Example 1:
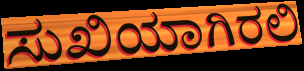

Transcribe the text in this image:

ಸುಖಿಯಾಗಿರಲಿ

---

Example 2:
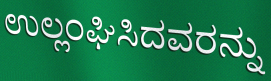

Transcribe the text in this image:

ಉಲ್ಲಂಘಿಸಿದವರನ್ನು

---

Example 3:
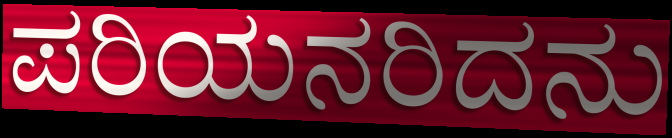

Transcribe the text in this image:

ಪರಿಯನರಿದನು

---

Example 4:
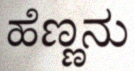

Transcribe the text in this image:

ಹೆಣ್ಣನು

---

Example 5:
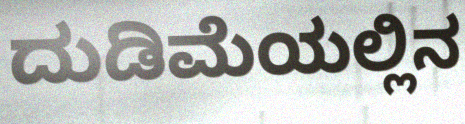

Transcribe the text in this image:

ದುಡಿಮೆಯಲ್ಲಿನ